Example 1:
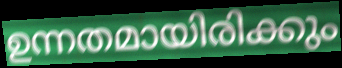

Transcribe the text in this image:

ഉന്നതമായിരിക്കും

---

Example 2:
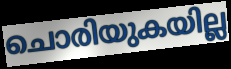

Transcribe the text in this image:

ചൊരിയുകയില്ല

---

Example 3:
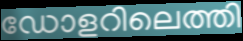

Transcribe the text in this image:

ഡോളറിലെത്തി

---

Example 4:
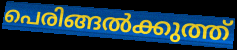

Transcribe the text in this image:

പെരിങ്ങൽക്കുത്ത്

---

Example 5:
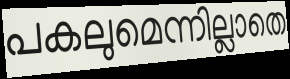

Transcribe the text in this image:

പകലുമെന്നില്ലാതെ